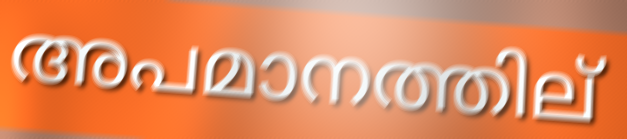
അപമാനത്തില്